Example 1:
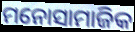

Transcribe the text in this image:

ମନୋସାମାଜିକ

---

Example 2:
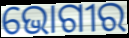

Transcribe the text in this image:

ଭୋଗୀର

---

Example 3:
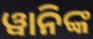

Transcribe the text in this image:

ୱାନିଙ୍କ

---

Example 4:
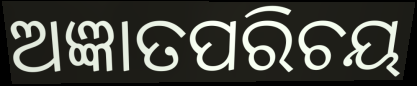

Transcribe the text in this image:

ଅଜ୍ଞାତପରିଚୟ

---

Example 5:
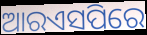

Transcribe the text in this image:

ଆରଏସପିରେ